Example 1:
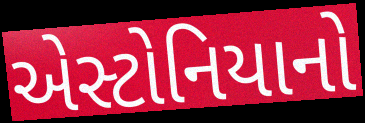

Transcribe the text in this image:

એસ્ટોનિયાનો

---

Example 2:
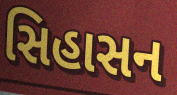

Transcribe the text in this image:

સિહાસન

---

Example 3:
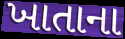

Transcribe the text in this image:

ખાતાના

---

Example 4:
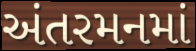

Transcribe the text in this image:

અંતરમનમાં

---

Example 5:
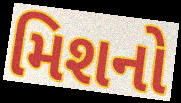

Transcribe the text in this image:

મિશનો